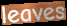
leaves